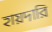
হায়দারি